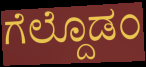
ಗೆಲ್ದೊಡಂ